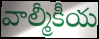
వాల్మీకీయ